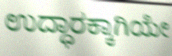
ಉದ್ಧಾರಕ್ಕಾಗಿಯೇ